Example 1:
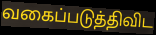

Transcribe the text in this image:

வகைப்படுத்திவிட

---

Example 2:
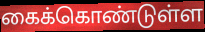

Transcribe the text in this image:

கைக்கொண்டுள்ள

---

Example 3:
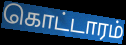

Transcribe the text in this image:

கொட்டாரம்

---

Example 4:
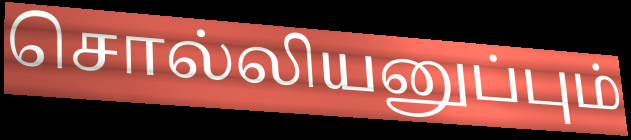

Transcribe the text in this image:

சொல்லியனுப்பும்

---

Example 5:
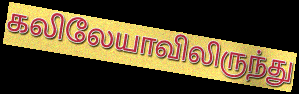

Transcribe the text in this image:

கலிலேயாவிலிருந்து